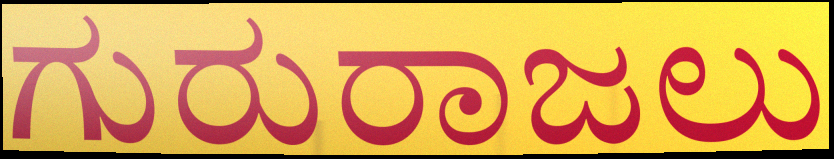
ಗುರುರಾಜಲು